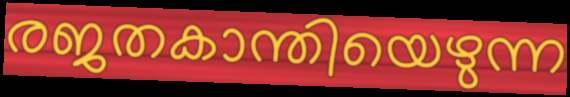
രജതകാന്തിയെഴുന്ന